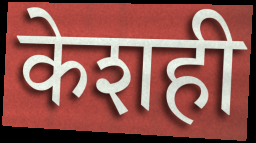
केशही